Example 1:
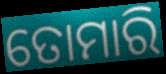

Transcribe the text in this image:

ତୋମାରି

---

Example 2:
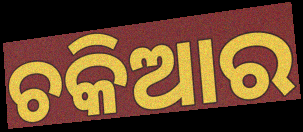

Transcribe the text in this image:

ଚକିଆର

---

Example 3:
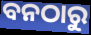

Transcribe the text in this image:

ବନଠାରୁ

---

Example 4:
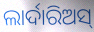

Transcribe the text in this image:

ଲାର୍ଦାରିଅସ୍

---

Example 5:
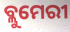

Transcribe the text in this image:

ବ୍ଲୁମେରୀ